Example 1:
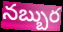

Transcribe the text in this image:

నబ్బుర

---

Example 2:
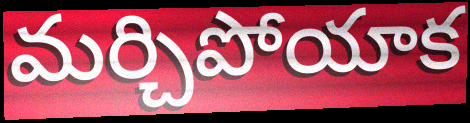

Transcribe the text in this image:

మర్చిపోయాక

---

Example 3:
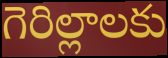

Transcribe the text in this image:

గెరిల్లాలకు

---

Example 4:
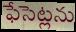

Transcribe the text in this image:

ఫేసెట్లను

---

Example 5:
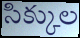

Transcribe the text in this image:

సిక్కుల